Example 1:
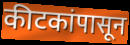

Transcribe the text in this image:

कीटकांपासून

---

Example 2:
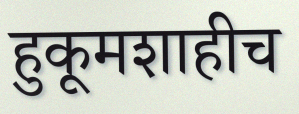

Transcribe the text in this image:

हुकूमशाहीच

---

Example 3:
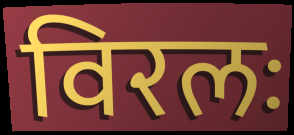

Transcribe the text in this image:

विरलः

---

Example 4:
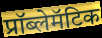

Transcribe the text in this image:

प्रॉब्लेमॅटिक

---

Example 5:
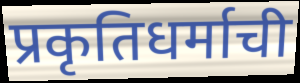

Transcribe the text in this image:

प्रकृतिधर्माची